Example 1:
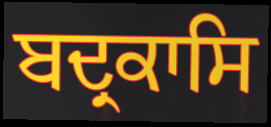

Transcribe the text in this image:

ਬਦ੍ਰਕਾਸਿ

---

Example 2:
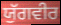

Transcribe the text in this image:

ਯੁੱਗਵੀਰ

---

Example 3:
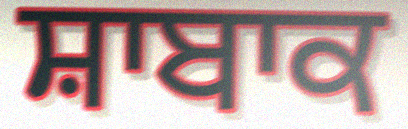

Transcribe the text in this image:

ਸ਼ਾਬਾਕ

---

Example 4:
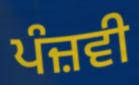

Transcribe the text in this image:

ਪੰਜ਼ਵੀ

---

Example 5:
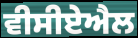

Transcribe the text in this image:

ਵੀਸੀਏਐਲ